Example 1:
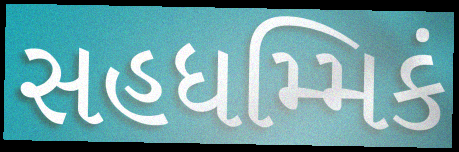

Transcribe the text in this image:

સહધમ્મિકં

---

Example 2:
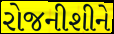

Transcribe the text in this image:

રોજનીશીને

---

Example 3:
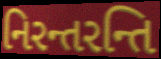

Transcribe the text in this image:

નિરન્તરન્તિ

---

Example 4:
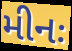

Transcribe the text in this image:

મીનઃ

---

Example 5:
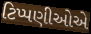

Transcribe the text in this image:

ટિપ્પણીઓએ